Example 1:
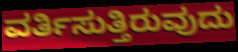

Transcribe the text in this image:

ವರ್ತಿಸುತ್ತಿರುವುದು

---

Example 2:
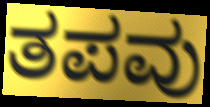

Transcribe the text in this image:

ತಪವು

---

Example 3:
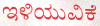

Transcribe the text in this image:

ಇಳಿಯುವಿಕೆ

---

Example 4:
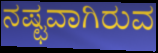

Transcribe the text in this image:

ನಷ್ಟವಾಗಿರುವ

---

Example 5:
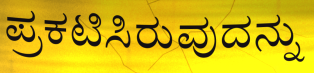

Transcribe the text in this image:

ಪ್ರಕಟಿಸಿರುವುದನ್ನು